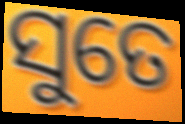
ସୁତେ